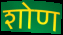
शोण